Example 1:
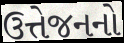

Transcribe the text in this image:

ઉત્તેજનનો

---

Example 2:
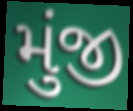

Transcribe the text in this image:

મુંજી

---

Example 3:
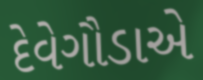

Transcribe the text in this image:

દેવેગૌડાએ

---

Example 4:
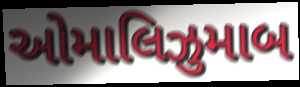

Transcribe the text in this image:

ઓમાલિઝુમાબ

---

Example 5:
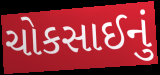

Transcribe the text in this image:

ચોકસાઈનું